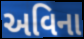
અવિના